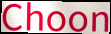
Choon